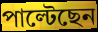
পাল্টেছেন